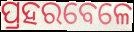
ପ୍ରହରବେଳେ